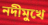
নদীমুখে